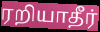
ரறியாதீர்